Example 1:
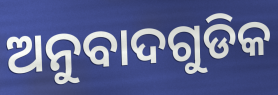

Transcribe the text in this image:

ଅନୁବାଦଗୁଡିକ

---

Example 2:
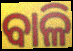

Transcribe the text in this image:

ବାଳି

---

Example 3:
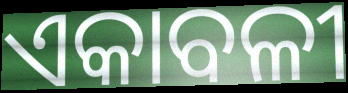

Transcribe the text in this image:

ଏକାବଳୀ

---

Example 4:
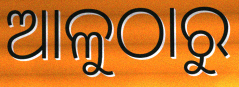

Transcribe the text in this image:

ଆଳୁଠାରୁ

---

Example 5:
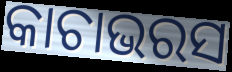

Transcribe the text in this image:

କାଚାଭରସ